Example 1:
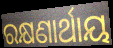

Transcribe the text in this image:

ରକ୍ଷଣାର୍ଥାୟ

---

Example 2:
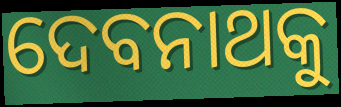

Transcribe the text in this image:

ଦେବନାଥକୁ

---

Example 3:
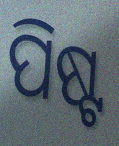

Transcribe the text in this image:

ପିଷ୍ଟ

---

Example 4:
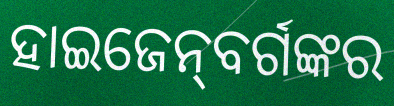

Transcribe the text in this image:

ହାଇଜେନ୍‌ବର୍ଗଙ୍କର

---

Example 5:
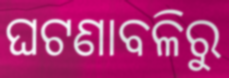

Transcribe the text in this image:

ଘଟଣାବଳିରୁ